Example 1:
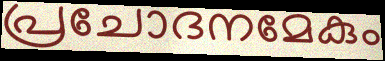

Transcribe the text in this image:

പ്രചോദനമേകും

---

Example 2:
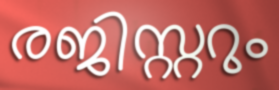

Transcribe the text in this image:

രജിസ്റ്ററും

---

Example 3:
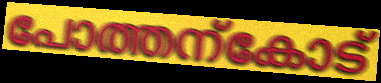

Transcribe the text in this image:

പോത്തന്കോട്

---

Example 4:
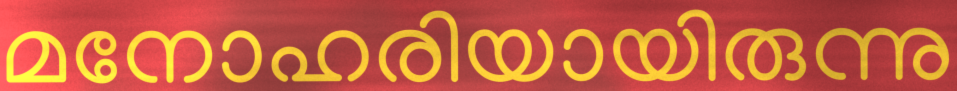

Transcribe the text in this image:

മനോഹരിയായിരുന്നു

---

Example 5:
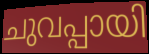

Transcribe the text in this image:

ചുവപ്പായി